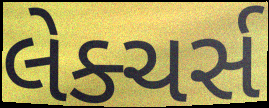
લેક્ચર્સ